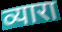
व्यारा